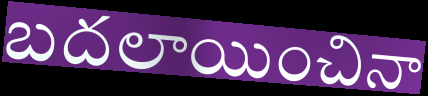
బదలాయించినా